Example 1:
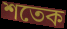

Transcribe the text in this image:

শতেক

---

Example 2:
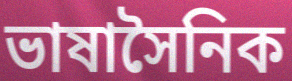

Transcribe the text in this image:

ভাষাসৈনিক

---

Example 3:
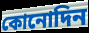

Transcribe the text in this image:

কোনোদিন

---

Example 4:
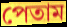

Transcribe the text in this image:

পেতাম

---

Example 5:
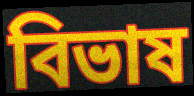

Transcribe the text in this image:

বিভাষ